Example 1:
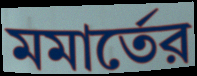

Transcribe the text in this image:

মমার্তের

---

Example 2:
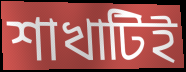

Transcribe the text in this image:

শাখাটিই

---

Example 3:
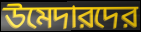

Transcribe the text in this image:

উমেদারদের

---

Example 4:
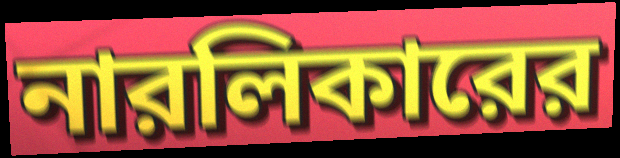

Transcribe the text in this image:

নারলিকারের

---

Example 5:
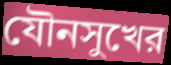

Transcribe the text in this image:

যৌনসুখের